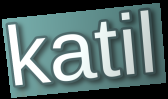
katil